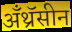
अँथ्रॅसीन